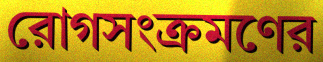
রোগসংক্রমণের